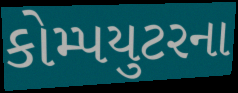
કોમ્પયુટરના